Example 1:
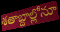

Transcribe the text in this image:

శతాబ్దాల్లోనూ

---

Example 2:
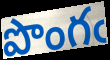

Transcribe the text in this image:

పొంగఁ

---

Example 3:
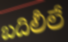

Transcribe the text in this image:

బదిలీలే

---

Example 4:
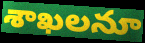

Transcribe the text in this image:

శాఖలనూ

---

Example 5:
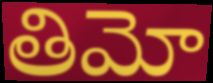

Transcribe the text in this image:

తిమో